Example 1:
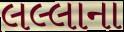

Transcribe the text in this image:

લલ્લાના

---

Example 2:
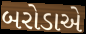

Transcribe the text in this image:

બરોડાએ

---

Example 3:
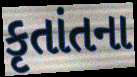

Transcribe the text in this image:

કૃતાંતના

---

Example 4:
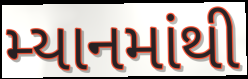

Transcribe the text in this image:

મ્યાનમાંથી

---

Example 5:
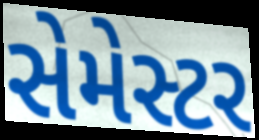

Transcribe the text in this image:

સેમેસ્ટર